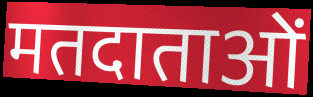
मतदाताओें